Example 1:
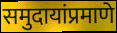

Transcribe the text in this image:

समुदायांप्रमाणे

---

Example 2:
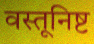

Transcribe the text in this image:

वस्तूनिष्ट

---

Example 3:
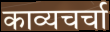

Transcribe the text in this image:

काव्यचर्चा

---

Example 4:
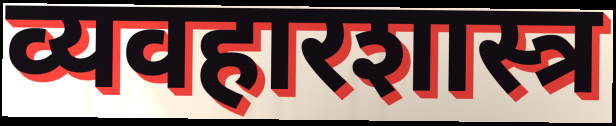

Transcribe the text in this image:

व्यवहारशास्त्र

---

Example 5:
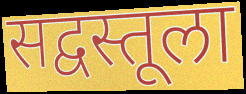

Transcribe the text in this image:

सद्वस्तूला